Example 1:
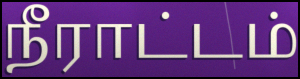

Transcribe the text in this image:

நீராட்டம்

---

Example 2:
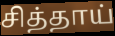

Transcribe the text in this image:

சித்தாய்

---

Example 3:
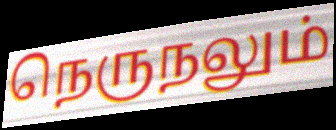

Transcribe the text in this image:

நெருநலும்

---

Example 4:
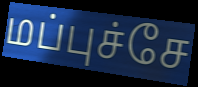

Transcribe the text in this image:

மப்புச்சே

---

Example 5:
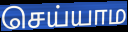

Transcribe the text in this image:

செய்யாம